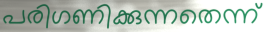
പരിഗണിക്കുന്നതെന്ന്